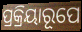
ପ୍ରକ୍ରିୟାରୂପେ